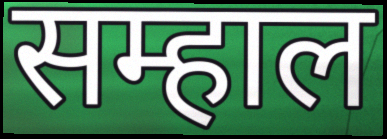
सम्हाल